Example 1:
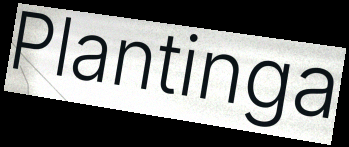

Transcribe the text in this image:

Plantinga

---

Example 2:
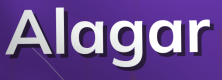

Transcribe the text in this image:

Alagar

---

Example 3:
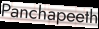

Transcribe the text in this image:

Panchapeeth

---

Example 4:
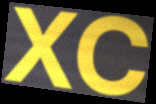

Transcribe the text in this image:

XC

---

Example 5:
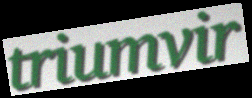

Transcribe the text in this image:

triumvir